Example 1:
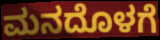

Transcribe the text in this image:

ಮನದೊಳಗೆ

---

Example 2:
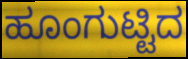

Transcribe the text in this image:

ಹೂಂಗುಟ್ಟಿದ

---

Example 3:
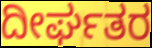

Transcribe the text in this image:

ದೀರ್ಘತರ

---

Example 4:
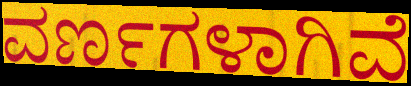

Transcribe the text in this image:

ವರ್ಣಗಳಾಗಿವೆ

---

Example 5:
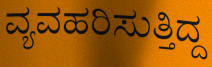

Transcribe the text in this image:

ವ್ಯವಹರಿಸುತ್ತಿದ್ದ